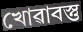
খোৱাবস্তু